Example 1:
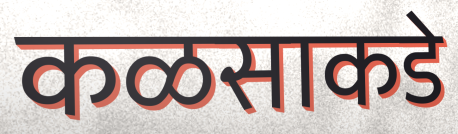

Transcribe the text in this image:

कळसाकडे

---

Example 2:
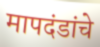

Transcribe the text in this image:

मापदंडांचे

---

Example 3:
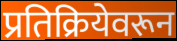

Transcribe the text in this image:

प्रतिक्रियेवरून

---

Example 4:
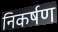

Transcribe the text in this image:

निकर्षण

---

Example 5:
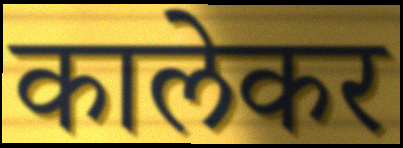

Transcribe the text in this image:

कालेकर